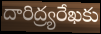
దారిద్ర్యరేఖకు